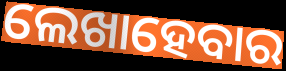
ଲେଖାହେବାର